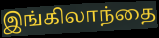
இங்கிலாந்தை